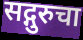
सद्गुरुचा